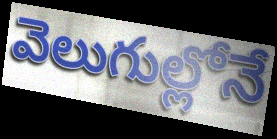
వెలుగుల్లోనే